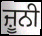
ਜ਼ੂਨੀ